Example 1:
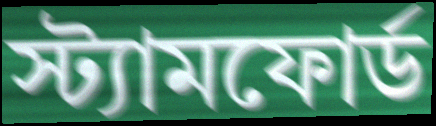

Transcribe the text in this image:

স্ট্যামফোর্ড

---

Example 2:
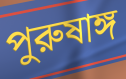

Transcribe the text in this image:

পুরুষাঙ্গ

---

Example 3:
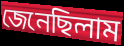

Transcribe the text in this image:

জেনেছিলাম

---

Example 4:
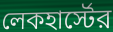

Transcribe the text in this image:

লেকহার্স্টের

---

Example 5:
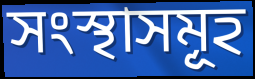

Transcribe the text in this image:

সংস্থাসমূহ